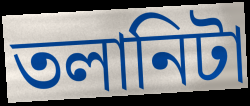
তলানিটা